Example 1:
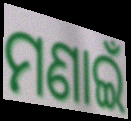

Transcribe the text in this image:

ମଣାଇଁ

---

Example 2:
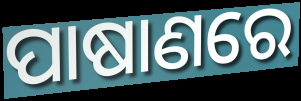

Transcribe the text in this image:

ପାଷାଣରେ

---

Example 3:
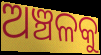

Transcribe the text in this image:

ଅଞ୍ଚଳକୁ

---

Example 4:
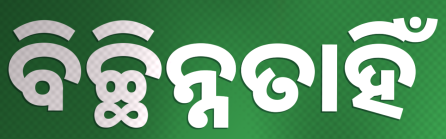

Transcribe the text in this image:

ବିଚ୍ଛିନ୍ନତାହିଁ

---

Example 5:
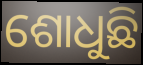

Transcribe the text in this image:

ଶୋଧୁଛି